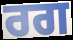
ਰਗ